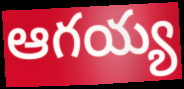
ఆగయ్య